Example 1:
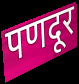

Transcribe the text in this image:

पणदूर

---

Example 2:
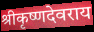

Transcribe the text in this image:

श्रीकृष्णदेवराय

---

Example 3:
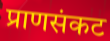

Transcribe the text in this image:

प्राणसंकट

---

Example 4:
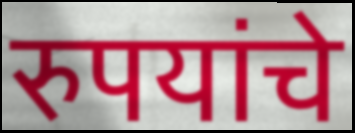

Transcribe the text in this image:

रुपयांचे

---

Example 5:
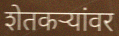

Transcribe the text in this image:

शेतकर्‍यांवर